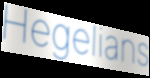
Hegelians